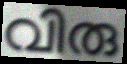
വിരു